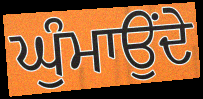
ਘੁੰਮਾਉਂਦੇ